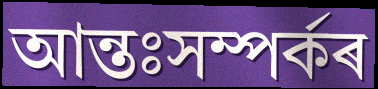
আন্তঃসম্পৰ্কৰ